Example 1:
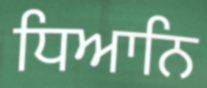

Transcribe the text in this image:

ਧਿਆਨਿ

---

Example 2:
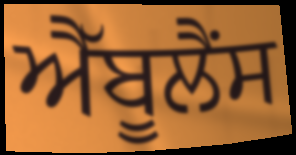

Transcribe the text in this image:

ਐੱਬੂਲੈਂਸ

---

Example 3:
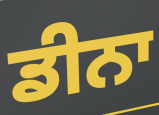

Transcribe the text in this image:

ਡੀਨਾ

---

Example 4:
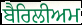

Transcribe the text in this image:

ਬੈਰਿਲੀਅਮ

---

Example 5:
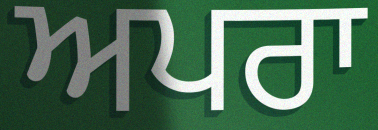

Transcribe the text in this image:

ਅਪਰਾ